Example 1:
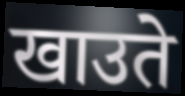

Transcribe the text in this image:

खाउते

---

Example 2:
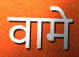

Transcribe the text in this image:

वामे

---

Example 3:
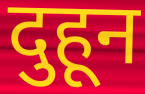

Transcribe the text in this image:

दुहून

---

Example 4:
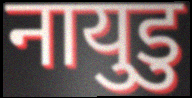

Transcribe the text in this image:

नायुडु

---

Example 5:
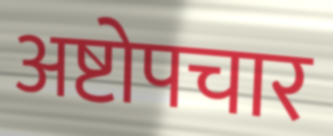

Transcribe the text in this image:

अष्टोपचार